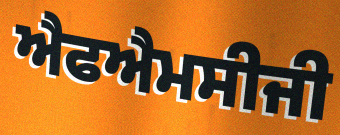
ਐਫਐਮਸੀਜੀ